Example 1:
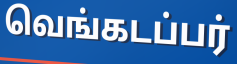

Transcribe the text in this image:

வெங்கடப்பர்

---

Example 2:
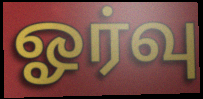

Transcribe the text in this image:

ஓர்வு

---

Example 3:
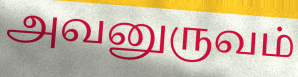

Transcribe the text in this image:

அவனுருவம்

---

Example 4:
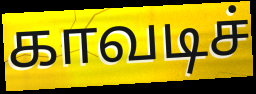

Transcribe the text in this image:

காவடிச்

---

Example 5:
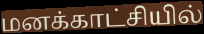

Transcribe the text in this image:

மனக்காட்சியில்